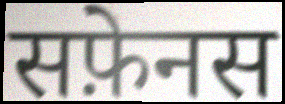
सफ़ेनस